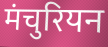
मंचुरियन